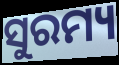
ସୁରମ୍ୟ